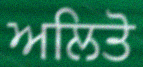
ਅਲਿਤੋ